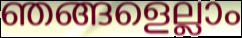
ഞങ്ങളെല്ലാം